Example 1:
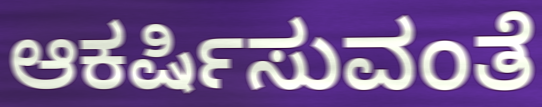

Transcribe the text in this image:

ಆಕರ್ಷಿಸುವಂತೆ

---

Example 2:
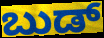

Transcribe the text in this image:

ಬುಡ್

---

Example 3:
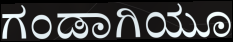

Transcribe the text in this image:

ಗಂಡಾಗಿಯೂ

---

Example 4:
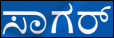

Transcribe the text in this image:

ಸಾಗರ್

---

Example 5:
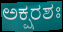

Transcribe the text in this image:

ಅಕ್ಷರಶಃ